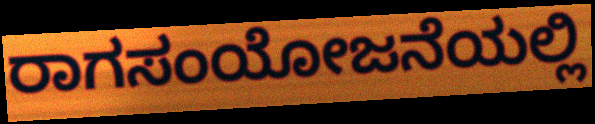
ರಾಗಸಂಯೋಜನೆಯಲ್ಲಿ